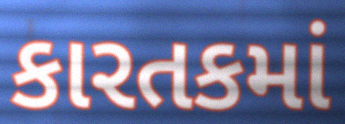
કારતકમાં